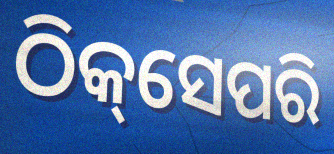
ଠିକ୍‌ସେପରି